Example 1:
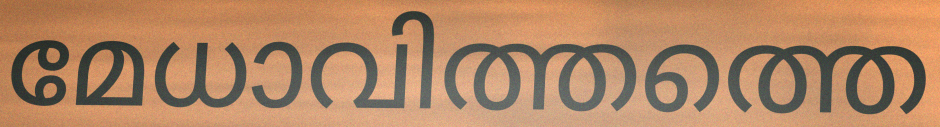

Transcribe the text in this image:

മേധാവിത്തത്തെ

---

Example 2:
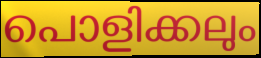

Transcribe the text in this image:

പൊളിക്കലും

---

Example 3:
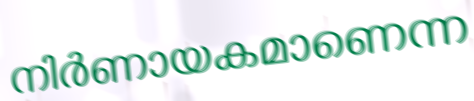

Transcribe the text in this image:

നിർണായകമാണെന്ന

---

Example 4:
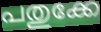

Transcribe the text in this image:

പതുക്കേ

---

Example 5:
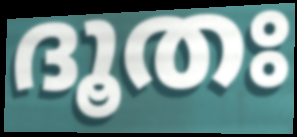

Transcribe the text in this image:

ദൂതഃ